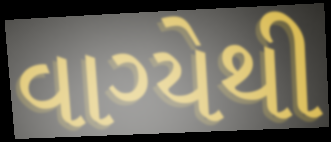
વાગ્યેથી